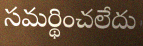
సమర్థించలేదు